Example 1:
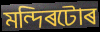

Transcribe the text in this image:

মন্দিৰটোৰ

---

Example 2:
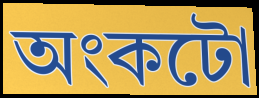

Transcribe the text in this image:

অংকটো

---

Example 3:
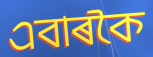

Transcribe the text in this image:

এবাৰকৈ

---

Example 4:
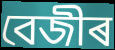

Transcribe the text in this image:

বেজীৰ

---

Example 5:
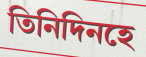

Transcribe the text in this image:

তিনিদিনহে